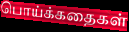
பொய்க்கதைகள்